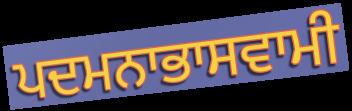
ਪਦਮਨਾਭਾਸਵਾਮੀ